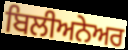
ਬਿਲੀਅਨੇਅਰ